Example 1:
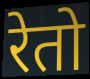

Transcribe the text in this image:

रेतो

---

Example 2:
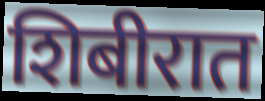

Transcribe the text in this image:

शिबीरात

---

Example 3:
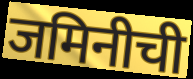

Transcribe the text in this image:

जमिनीची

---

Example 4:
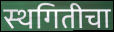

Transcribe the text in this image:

स्थगितीचा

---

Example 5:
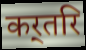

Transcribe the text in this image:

कर्तरि